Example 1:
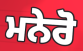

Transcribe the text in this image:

ਮਨੇਰੋ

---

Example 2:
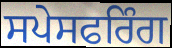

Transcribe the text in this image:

ਸਪੇਸਫਰਿੰਗ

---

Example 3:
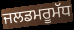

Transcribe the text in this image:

ਜਲਡਮਰੂਮੱਧ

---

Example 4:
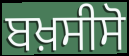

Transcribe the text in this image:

ਬਖ਼ਸੀਸੋ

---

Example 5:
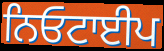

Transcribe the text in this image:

ਨਿਓਟਾਈਪ